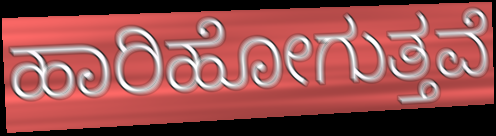
ಹಾರಿಹೋಗುತ್ತವೆ